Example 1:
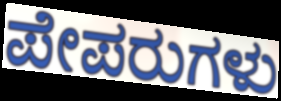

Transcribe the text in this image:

ಪೇಪರುಗಳು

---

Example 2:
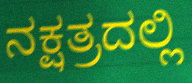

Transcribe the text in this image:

ನಕ್ಷತ್ರದಲ್ಲಿ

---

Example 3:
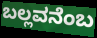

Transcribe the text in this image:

ಬಲ್ಲವನೆಂಬ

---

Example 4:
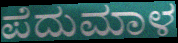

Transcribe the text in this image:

ಪೆದುಮಾಳ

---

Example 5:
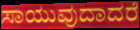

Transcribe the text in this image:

ಸಾಯುವುದಾದರೆ